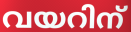
വയറിന്